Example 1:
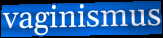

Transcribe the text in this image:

vaginismus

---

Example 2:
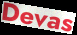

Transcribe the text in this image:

Devas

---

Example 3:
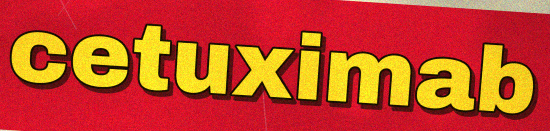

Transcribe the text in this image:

cetuximab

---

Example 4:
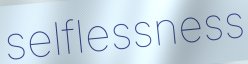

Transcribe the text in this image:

selflessness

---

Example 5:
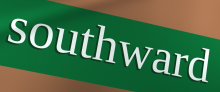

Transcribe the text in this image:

southward